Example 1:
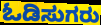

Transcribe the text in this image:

ಓಡಿಸುಗರು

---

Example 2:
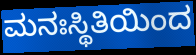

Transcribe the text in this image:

ಮನಃಸ್ಥಿತಿಯಿಂದ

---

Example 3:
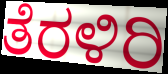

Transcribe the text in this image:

ತೆರಳಿರಿ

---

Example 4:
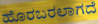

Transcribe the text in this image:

ಹೊರಬರಲಾಗದೆ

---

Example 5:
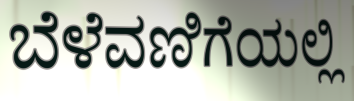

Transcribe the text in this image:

ಬೆಳೆವಣಿಗೆಯಲ್ಲಿ